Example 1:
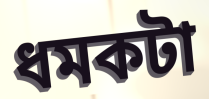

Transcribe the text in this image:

ধমকটা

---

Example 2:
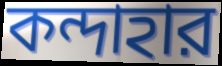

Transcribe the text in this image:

কন্দাহার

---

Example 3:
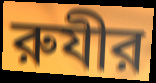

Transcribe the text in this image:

রুযীর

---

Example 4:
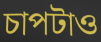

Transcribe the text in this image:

চাপটাও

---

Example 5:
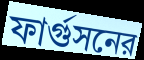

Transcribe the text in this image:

ফার্গুসনের